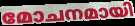
മോചനമായി